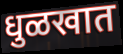
धुळखात